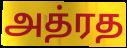
அத்ரத